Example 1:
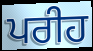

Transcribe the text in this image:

ਪਰੀਹ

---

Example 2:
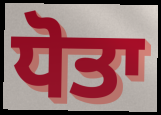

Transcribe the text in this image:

ਧੋਤਾ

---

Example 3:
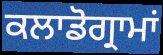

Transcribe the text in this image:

ਕਲਾਡੋਗ੍ਰਾਮਾਂ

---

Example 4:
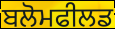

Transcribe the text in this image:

ਬਲੋਮਫੀਲਡ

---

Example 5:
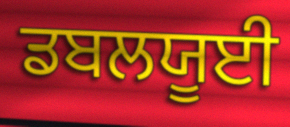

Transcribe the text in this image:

ਡਬਲਯੂਈ